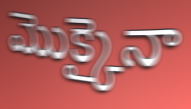
మొక్కైనా